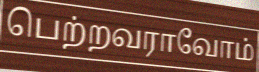
பெற்றவராவோம்